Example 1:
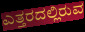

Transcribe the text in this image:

ಎತ್ತರದಲ್ಲಿರುವ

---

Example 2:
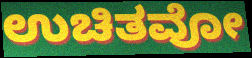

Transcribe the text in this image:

ಉಚಿತವೋ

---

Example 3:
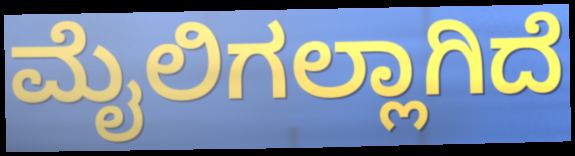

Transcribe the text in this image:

ಮೈಲಿಗಲ್ಲಾಗಿದೆ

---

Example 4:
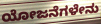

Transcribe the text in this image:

ಯೋಜನೆಗಳೇನು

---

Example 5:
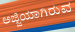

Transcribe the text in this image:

ಅಜ್ಜಿಯಾಗಿರುವ